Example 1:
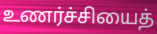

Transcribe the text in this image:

உணர்ச்சியைத்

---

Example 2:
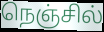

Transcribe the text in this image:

நெஞ்சில்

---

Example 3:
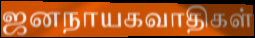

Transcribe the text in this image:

ஜனநாயகவாதிகள்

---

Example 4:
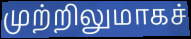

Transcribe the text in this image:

முற்றிலுமாகச்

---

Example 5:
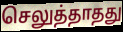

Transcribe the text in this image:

செலுத்தாதது